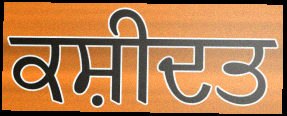
ਕਸ਼ੀਦਤ